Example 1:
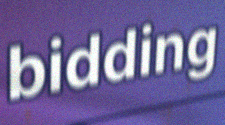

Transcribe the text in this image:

bidding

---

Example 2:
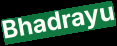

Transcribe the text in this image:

Bhadrayu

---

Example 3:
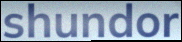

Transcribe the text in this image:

shundor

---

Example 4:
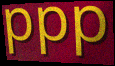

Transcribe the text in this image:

ppp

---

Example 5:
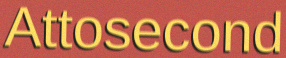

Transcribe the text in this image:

Attosecond